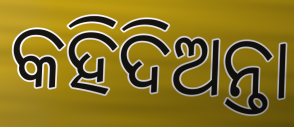
କହିଦିଅନ୍ତା